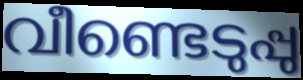
വീണ്ടെടുപ്പു